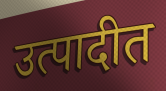
उत्पादीत